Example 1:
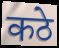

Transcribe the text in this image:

कठे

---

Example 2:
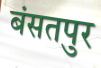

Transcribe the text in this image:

बंसतपुर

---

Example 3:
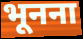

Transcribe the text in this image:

भूनना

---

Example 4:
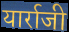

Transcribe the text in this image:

यार्राजी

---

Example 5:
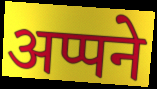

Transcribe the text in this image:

अप्पने